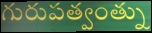
గురుపత్వంత్ను